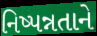
નિષ્પન્નતાને